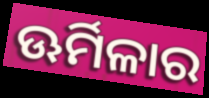
ଊର୍ମିଳାର